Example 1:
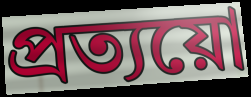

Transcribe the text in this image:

প্ৰত্যয়ো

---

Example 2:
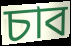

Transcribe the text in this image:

চাব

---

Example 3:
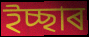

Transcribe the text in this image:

ইচ্ছাৰ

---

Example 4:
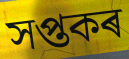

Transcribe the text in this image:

সপ্তকৰ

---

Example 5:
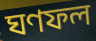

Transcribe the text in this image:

ঘণফল